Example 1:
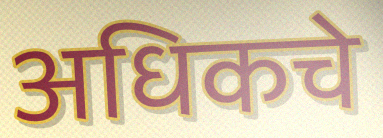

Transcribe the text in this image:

अधिकचे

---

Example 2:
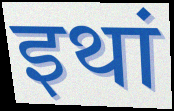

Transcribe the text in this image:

इथां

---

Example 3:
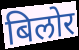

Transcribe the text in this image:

बिलोर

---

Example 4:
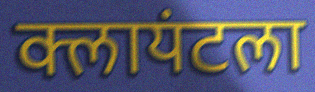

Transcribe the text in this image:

क्लायंटला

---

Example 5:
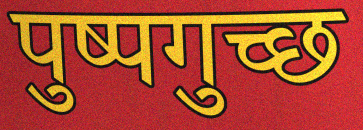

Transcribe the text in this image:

पुष्पगुच्छ